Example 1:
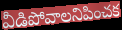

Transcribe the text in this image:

వీడిపోవాలనిపించక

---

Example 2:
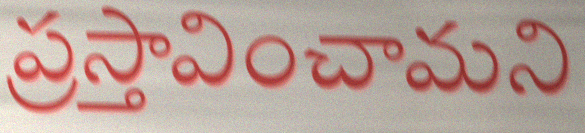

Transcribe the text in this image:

ప్రస్తావించామని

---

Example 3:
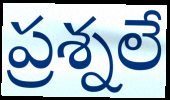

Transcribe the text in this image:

ప్రశ్నలే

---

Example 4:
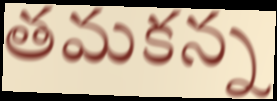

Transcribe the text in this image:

తమకన్న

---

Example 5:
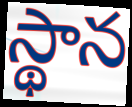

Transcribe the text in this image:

స్థాన